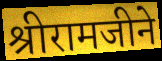
श्रीरामजीने